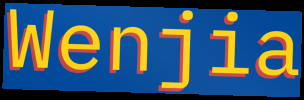
Wenjia